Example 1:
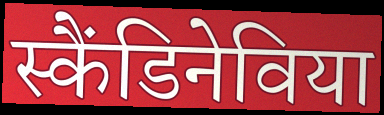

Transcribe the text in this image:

स्कैंडिनेविया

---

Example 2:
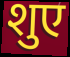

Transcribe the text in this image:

शुए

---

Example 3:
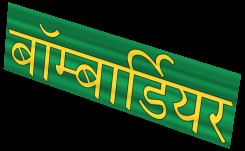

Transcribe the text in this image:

बॉम्बार्डियर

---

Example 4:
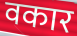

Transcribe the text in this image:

वकार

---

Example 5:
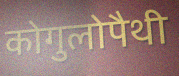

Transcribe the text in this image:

कोगुलोपैथी